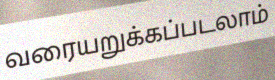
வரையறுக்கப்படலாம்